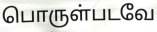
பொருள்படவே